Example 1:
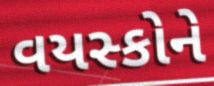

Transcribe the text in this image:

વયસ્કોને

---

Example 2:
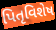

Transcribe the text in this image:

પિતૃવિશેષ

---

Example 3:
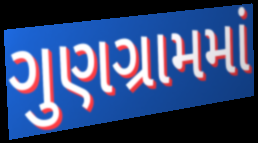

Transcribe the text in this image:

ગુણગ્રામમાં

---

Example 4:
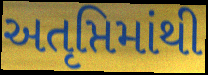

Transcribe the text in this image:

અતૃપ્તિમાંથી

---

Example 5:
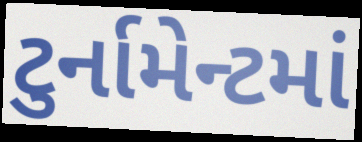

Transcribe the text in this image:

ટુર્નામેન્ટમાં